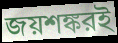
জয়শঙ্করই